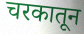
चरकातून